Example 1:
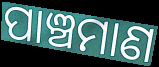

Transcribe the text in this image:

ପାଞ୍ଚମାଣ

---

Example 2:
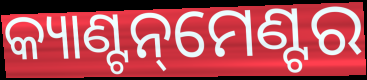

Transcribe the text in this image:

କ୍ୟାଣ୍ଟନ୍‌ମେଣ୍ଟର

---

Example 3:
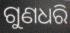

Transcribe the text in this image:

ଗୁଣଧରି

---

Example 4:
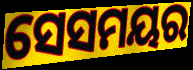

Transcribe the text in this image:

ସେସମୟର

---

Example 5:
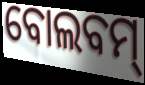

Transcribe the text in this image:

ବୋଲବମ୍